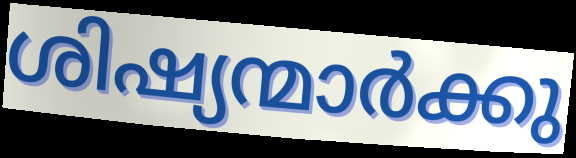
ശിഷ്യന്മാർക്കു